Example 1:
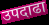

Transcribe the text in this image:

उपदाढा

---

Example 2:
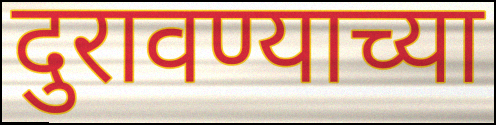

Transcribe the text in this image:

दुरावण्याच्या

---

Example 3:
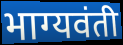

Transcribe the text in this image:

भाग्यवंती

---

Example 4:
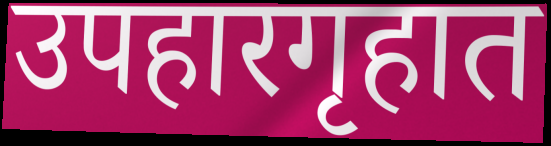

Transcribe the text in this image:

उपहारगृहात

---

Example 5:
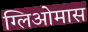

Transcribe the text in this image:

ग्लिओमास